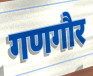
गणगौर